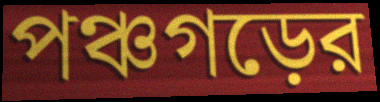
পঞ্চগড়ের